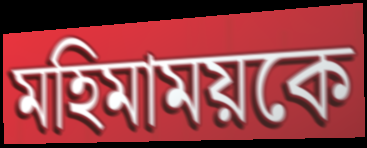
মহিমাময়কে